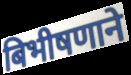
बिभीषणाने